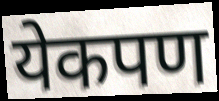
येकपण